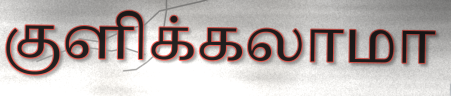
குளிக்கலாமா